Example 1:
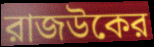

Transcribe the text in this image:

রাজউকের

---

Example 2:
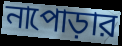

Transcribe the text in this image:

নাপোড়ার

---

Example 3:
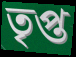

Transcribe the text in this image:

তৃপ্ত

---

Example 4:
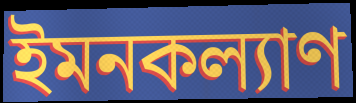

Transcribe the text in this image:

ইমনকল্যাণ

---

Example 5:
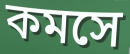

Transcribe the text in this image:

কমসে